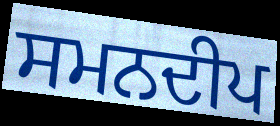
ਸਮਨਦੀਪ